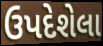
ઉપદેશેલા